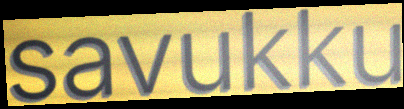
savukku